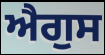
ਐਗੁਸ